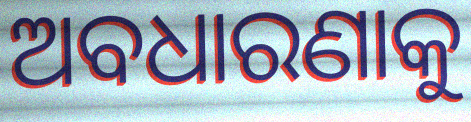
ଅବଧାରଣାକୁ